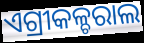
ଏଗ୍ରୀକଳ୍ଚରାଲ